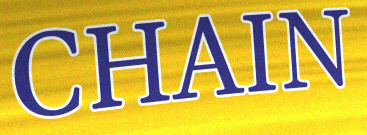
CHAIN